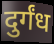
दुर्गंध